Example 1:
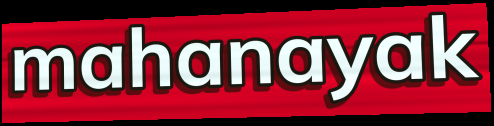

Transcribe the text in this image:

mahanayak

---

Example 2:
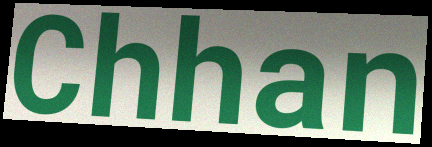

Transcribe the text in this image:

Chhan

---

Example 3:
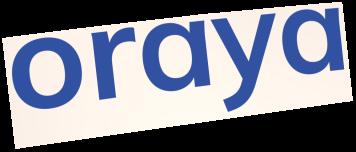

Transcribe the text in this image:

oraya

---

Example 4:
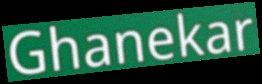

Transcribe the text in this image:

Ghanekar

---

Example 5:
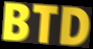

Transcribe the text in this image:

BTD